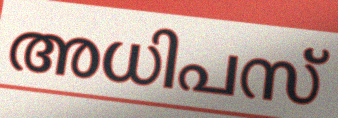
അധിപസ്